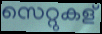
സെറ്റുകള്